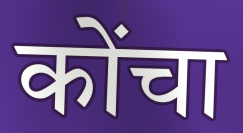
कोंचा